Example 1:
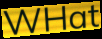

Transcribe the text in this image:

WHat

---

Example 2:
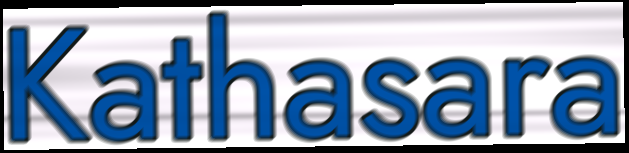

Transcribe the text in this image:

Kathasara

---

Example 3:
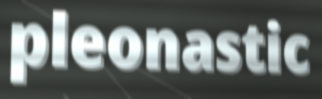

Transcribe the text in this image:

pleonastic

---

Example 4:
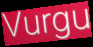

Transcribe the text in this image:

Vurgu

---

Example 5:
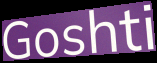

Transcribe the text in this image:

Goshti